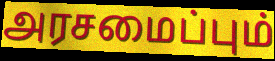
அரசமைப்பும்